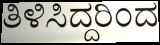
ತಿಳಿಸಿದ್ದರಿಂದ